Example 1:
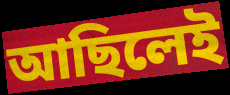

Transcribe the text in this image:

আছিলেই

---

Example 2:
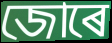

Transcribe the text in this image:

জোৰে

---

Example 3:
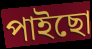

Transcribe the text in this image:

পাইছো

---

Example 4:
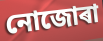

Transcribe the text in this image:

নোজোৰা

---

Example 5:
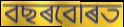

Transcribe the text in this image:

বছৰবোৰত